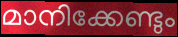
മാനിക്കേണ്ടും